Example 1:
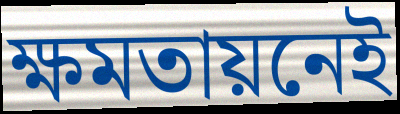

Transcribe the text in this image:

ক্ষমতায়নেই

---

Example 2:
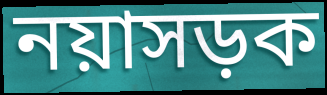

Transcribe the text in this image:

নয়াসড়ক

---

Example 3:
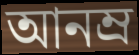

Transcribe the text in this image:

আনম্র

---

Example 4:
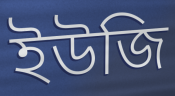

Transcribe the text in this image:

ইউজি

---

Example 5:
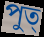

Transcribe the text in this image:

পুত্